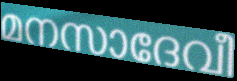
മനസാദേവീ